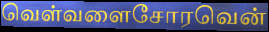
வெள்வளைசோரவென்